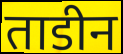
ताडीन